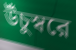
উঁচুস্বরে